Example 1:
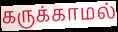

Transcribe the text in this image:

கருக்காமல்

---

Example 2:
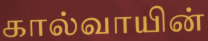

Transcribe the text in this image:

கால்வாயின்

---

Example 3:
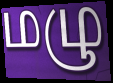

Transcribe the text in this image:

மழு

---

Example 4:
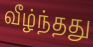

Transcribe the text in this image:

வீழ்ந்தது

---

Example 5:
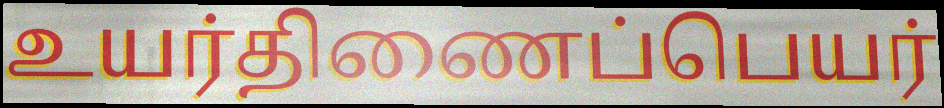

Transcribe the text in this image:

உயர்திணைப்பெயர்